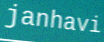
janhavi